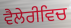
ਵੈਲੇਰੀਵਿਚ